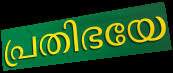
പ്രതിഭയേ